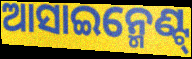
ଆସାଇନ୍ମେଣ୍ଟ୍